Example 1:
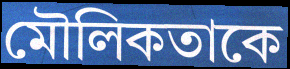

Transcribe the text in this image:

মৌলিকতাকে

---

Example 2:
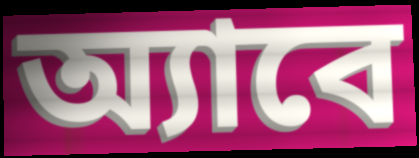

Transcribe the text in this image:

অ্যাবে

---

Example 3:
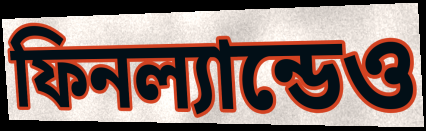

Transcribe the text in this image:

ফিনল্যান্ডেও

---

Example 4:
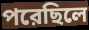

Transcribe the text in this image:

পরেছিলে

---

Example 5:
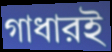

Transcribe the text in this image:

গাধারই